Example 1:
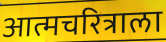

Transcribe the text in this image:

आत्मचरित्राला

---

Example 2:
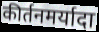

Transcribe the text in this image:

कीर्तनमर्यादा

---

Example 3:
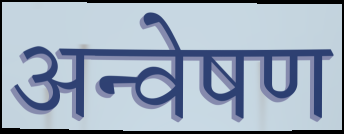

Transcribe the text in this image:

अन्वेषण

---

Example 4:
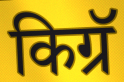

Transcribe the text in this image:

किग्रॅ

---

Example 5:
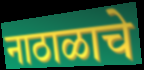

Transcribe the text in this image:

नाठाळाचे